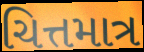
ચિત્તમાત્ર